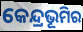
କେନ୍ଦ୍ରଭୂମିର